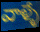
వాళ్ళే